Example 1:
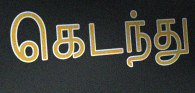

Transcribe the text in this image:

கெடந்து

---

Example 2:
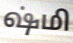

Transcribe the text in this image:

ஷ்மி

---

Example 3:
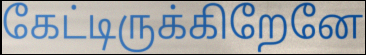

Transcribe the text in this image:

கேட்டிருக்கிறேனே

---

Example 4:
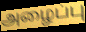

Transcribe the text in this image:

அழைப்பு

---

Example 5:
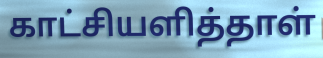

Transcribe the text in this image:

காட்சியளித்தாள்